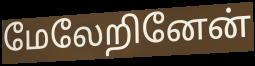
மேலேறினேன்